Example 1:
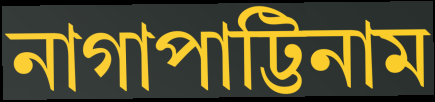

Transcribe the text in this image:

নাগাপাট্টিনাম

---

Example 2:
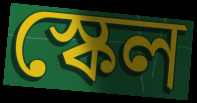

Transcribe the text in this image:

স্কেল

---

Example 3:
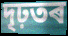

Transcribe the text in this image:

দৃঢ়তৰ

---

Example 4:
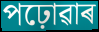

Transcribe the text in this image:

পঢ়োৱাৰ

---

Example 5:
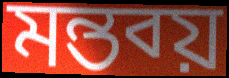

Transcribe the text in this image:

মন্তব্য়